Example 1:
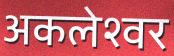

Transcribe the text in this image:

अकलेश्वर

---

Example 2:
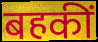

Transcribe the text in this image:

बहकीं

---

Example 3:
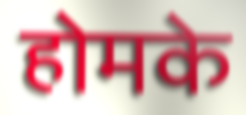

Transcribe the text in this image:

होमके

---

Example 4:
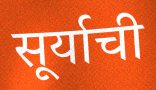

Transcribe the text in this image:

सूर्याची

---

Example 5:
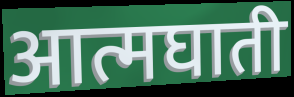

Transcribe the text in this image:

आत्मघाती